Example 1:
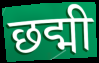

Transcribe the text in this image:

छद्मी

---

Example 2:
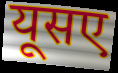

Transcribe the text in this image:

यूसए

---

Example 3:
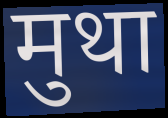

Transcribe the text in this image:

मुथा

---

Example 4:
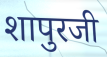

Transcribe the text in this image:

शापुरजी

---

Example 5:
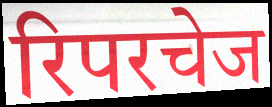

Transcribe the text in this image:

रिपरचेज